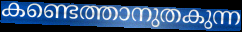
കണ്ടെത്താനുതകുന്ന